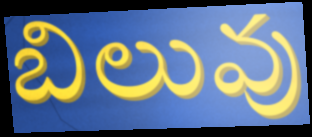
బిలువు